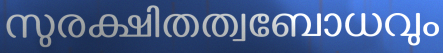
സുരക്ഷിതത്വബോധവും